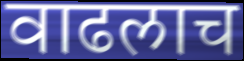
वाढलाच